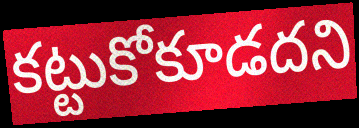
కట్టుకోకూడదని